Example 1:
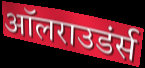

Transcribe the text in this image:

ऑलराउडंर्स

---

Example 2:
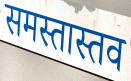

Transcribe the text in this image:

समस्तास्तव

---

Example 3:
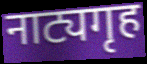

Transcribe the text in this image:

नाट्यगृह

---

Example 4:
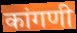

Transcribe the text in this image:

कांगणी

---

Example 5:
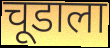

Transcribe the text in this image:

चूडाला